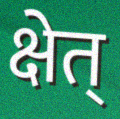
क्षेत्